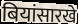
बियांसारखे